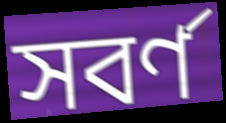
সবৰ্ণ